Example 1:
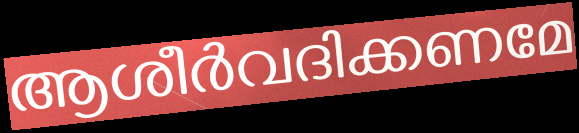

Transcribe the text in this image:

ആശീർവദിക്കണമേ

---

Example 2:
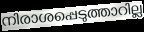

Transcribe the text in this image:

നിരാശപ്പെടുത്താറില്ല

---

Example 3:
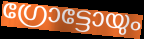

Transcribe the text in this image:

ഗ്രോട്ടോയും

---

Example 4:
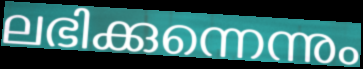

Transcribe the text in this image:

ലഭിക്കുന്നെന്നും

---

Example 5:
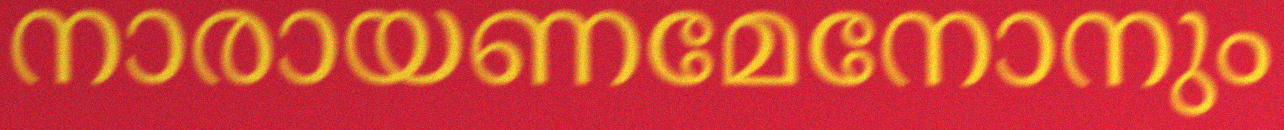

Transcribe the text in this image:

നാരായണമേനോനും